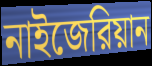
নাইজেরিয়ান